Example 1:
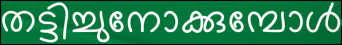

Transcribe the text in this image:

തട്ടിച്ചുനോക്കുമ്പോൾ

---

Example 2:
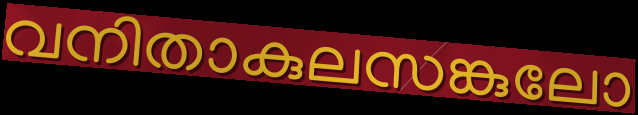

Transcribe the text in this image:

വനിതാകുലസങ്കുലോ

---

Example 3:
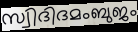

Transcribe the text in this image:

സ്വിദിദമംബുജം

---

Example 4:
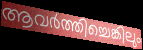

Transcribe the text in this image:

ആവർത്തിച്ചെങ്കിലും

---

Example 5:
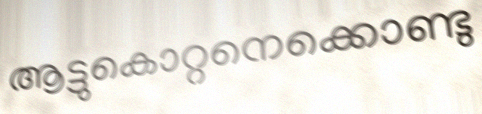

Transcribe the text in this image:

ആട്ടുകൊറ്റനെക്കൊണ്ടു